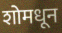
शोमधून